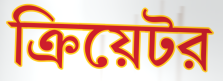
ক্রিয়েটর